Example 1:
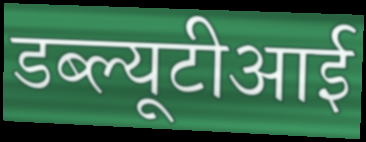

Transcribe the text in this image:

डब्ल्यूटीआई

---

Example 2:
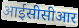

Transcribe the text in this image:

आईसीसीआर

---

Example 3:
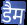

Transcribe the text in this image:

डैम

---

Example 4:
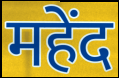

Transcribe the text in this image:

महेंद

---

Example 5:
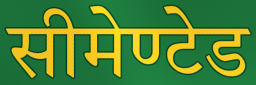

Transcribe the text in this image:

सीमेण्टेड